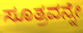
ಸೂತ್ರವನ್ನೇ